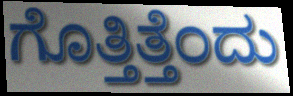
ಗೊತ್ತಿತ್ತೆಂದು